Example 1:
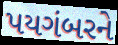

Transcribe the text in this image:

પયગંબરને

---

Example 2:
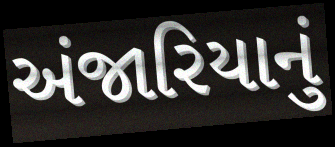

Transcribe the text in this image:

અંજારિયાનું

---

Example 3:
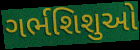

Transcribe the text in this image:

ગર્ભશિશુઓ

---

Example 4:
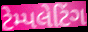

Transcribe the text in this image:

ટેમ્પલેટિંગ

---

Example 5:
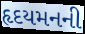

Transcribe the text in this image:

હૃદયમનની